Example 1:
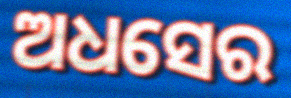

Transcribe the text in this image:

ଅଧସେର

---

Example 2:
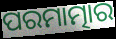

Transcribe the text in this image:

ପରମାତ୍ମାର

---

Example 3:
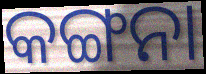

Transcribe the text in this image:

କଙ୍ଗନା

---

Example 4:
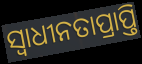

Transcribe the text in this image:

ସ୍ଵାଧୀନତାପ୍ରାପ୍ତି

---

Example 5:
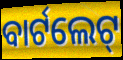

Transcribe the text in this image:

ବାର୍ଟଲେଟ୍